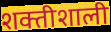
शक्‍तीशाली